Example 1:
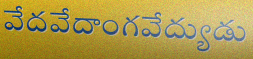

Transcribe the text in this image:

వేదవేదాంగవేద్యుడు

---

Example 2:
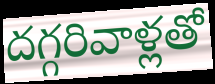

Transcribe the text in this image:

దగ్గరివాళ్లతో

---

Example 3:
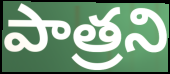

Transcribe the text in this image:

పాత్రని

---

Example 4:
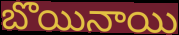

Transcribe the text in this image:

బొయినాయి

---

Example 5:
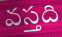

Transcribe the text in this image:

వస్తది